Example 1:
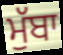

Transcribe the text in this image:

ਮੁੱਬਾ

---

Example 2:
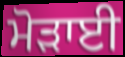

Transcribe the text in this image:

ਮੋੜਾਈ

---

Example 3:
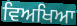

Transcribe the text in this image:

ਵਿਅਖਿਆ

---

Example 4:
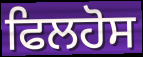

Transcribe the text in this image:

ਫਿਲਹੋਸ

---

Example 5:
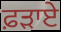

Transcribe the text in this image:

ਫ਼ੜਾਏ